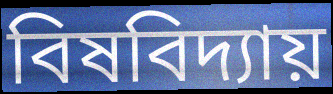
বিষবিদ্যায়